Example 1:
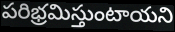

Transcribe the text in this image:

పరిభ్రమిస్తుంటాయని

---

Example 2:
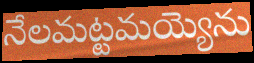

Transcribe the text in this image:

నేలమట్టమయ్యెను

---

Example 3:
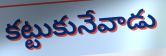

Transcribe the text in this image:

కట్టుకునేవాడు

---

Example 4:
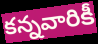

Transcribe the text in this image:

కన్నవారికీ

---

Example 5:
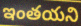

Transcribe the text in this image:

ఇంతయని